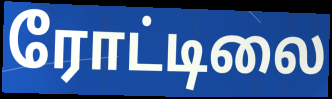
ரோட்டிலை